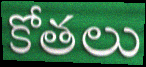
కోతలు